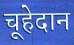
चूहेदान